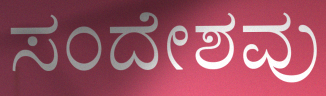
ಸಂದೇಶವು